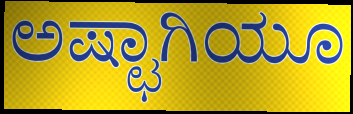
ಅಷ್ಟಾಗಿಯೂ